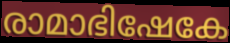
രാമാഭിഷേകേ